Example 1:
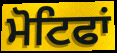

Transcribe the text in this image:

ਮੋਟਿਫਾਂ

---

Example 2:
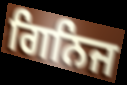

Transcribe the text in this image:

ਗਿਨਿਜ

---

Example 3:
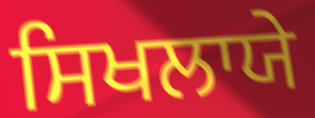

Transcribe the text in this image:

ਸਿਖਲਾਯੇ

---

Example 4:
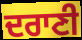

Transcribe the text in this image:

ਦਰਾਣੀ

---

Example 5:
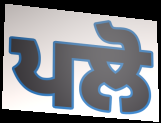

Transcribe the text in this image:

ਪਲੋ